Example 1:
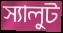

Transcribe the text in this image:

স্যালুট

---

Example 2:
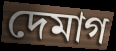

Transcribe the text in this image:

দেমাগ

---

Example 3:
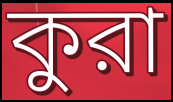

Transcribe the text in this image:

কুরা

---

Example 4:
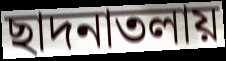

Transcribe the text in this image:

ছাদনাতলায়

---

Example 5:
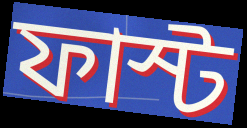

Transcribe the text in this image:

ফাস্ট